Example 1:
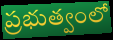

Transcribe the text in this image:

ప్రభుత్వంలో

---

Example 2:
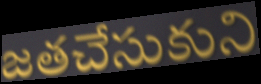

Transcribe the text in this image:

జతచేసుకుని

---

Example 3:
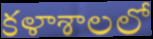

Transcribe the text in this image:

కళాశాలలో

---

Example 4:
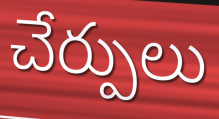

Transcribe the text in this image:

చేర్పులు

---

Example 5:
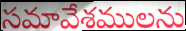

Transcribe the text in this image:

సమావేశములను